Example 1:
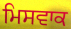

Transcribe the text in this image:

ਮਿਸਵਾਕ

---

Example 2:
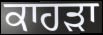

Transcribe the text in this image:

ਕਾਹੜਾ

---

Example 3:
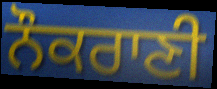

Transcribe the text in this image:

ਨੌਕਰਾਣੀ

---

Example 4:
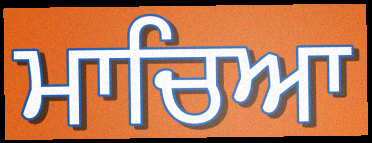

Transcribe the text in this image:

ਮਾਚਿਆ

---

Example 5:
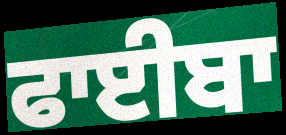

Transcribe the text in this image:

ਫਾਈਬਾ